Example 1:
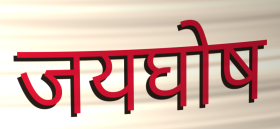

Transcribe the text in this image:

जयघोष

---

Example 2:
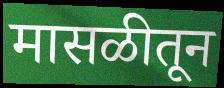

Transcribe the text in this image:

मासळीतून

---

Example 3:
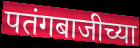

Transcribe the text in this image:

पतंगबाजीच्या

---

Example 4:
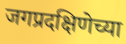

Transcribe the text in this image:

जगप्रदक्षिणेच्या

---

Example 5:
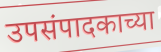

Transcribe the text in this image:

उपसंपादकाच्या